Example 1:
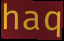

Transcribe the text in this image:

haq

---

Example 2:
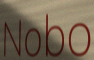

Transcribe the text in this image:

Nobo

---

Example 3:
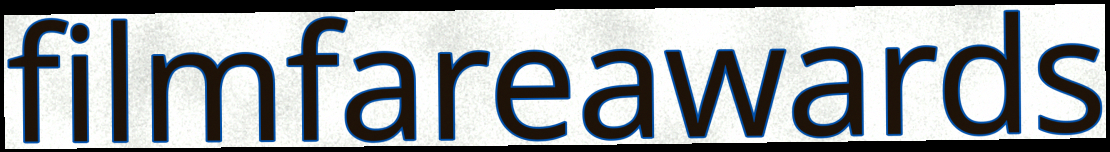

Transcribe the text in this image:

filmfareawards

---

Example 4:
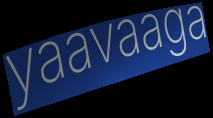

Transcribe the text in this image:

yaavaaga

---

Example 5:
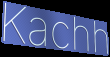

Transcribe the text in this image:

Kachh